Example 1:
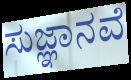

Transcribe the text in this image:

ಸುಜ್ಞಾನವೆ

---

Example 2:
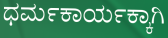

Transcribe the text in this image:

ಧರ್ಮಕಾರ್ಯಕ್ಕಾಗಿ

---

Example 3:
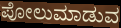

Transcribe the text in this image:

ಪೋಲುಮಾಡುವ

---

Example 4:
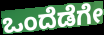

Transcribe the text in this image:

ಒಂದೆಡೆಗೇ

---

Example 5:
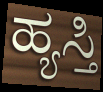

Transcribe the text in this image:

ಹ್ಯಸ್ತಿ